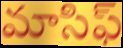
మాసిఫ్